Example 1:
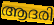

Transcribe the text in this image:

ആദരി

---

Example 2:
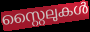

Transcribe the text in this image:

സ്റ്റൈലുകൾ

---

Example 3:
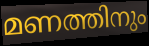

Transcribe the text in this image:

മണത്തിനും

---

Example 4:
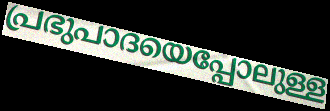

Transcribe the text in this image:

പ്രഭുപാദയെപ്പോലുള്ള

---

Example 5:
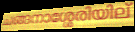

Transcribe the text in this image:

ചങ്ങനാശ്ശേരിയില്